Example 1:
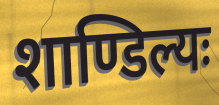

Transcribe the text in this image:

शाण्डिल्यः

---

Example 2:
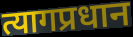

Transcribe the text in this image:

त्यागप्रधान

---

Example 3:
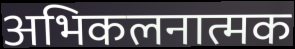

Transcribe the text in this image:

अभिकलनात्मक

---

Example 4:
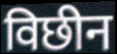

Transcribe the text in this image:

विछीन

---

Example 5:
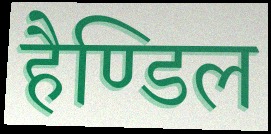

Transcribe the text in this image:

हैण्डिल